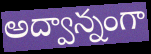
అద్వాన్నంగా